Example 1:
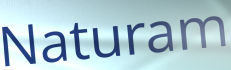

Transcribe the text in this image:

Naturam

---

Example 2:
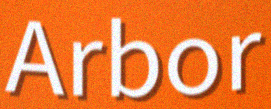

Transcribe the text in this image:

Arbor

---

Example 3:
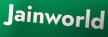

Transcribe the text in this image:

Jainworld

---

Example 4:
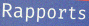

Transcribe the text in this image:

Rapports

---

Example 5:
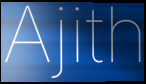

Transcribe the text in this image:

Ajith